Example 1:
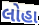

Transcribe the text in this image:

લોહા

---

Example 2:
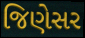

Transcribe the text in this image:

જિણેસર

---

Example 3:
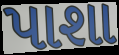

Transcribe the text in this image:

પાશા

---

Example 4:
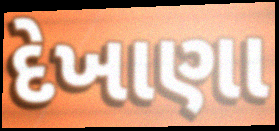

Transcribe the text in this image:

દેખાણા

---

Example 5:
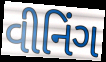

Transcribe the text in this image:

વીનિંગ